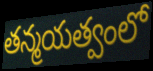
తన్మయత్వంలో